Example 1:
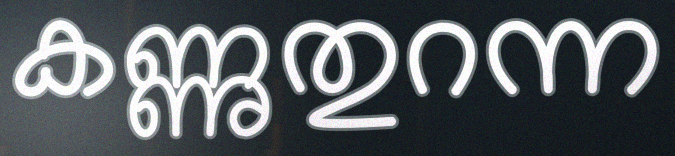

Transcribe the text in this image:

കണ്ണുതുറന്ന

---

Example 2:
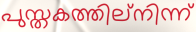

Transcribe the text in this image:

പുസ്തകത്തില്നിന്ന്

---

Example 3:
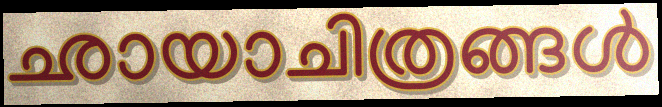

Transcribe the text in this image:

ഛായാചിത്രങ്ങൾ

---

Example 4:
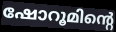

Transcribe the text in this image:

ഷോറൂമിന്റെ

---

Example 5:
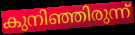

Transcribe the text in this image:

കുനിഞ്ഞിരുന്ന്